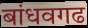
बांधवगढ